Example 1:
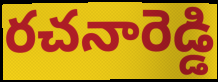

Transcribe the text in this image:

రచనారెడ్డి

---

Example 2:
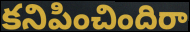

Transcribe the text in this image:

కనిపించిందిరా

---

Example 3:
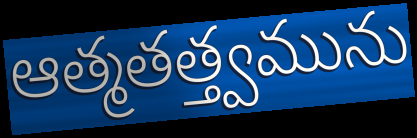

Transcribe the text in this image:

ఆత్మతత్త్వమును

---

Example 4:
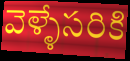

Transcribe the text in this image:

వెళ్ళేసరికి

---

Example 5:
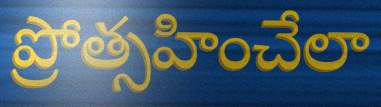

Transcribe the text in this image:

ప్రోత్సహించేలా